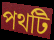
পথটি